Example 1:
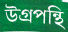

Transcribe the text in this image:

উগ্রপন্থি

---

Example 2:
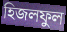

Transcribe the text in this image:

হিজলফুল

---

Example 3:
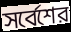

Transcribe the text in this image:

সর্বেশের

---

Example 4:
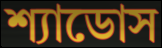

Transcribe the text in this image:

শ্যাডোস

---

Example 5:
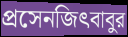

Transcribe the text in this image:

প্রসেনজিৎবাবুর